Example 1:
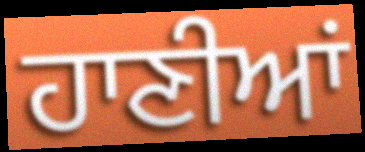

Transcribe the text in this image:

ਹਾਣੀਆਂ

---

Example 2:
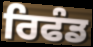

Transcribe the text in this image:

ਰਿਫੰਡ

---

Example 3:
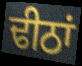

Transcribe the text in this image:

ਢੀਠਾਂ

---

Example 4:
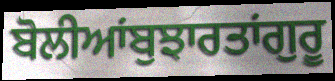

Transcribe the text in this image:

ਬੋਲੀਆਂਬੁਝਾਰਤਾਂਗੁਰੂ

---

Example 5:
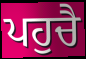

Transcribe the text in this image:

ਪਹੁਚੈ